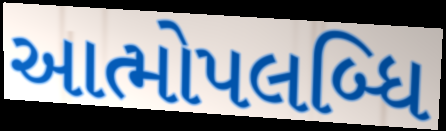
આત્મોપલબ્ધિ